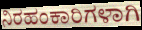
ನಿರಹಂಕಾರಿಗಳಾಗಿ